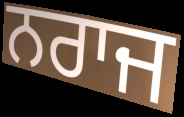
ਨਰਾਜ